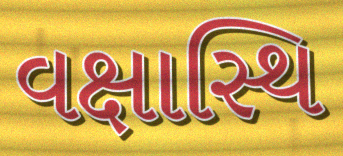
વક્ષાસ્થિ